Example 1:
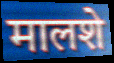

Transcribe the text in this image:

मालशे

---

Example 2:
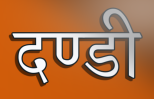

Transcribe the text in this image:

दण्डी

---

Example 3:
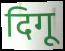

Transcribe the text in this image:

दिगू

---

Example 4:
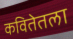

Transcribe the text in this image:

कवितेतला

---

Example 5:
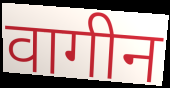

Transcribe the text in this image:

वागीन